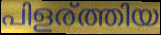
പിളര്ത്തിയ